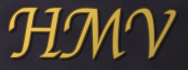
HMV